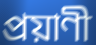
প্রয়াণী